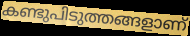
കണ്ടുപിടുത്തങ്ങളാണ്